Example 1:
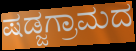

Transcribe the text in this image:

ಷಡ್ಜಗ್ರಾಮದ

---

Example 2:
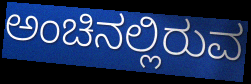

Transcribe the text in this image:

ಅಂಚಿನಲ್ಲಿರುವ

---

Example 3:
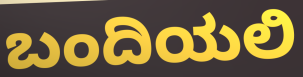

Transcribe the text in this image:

ಬಂದಿಯಲಿ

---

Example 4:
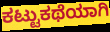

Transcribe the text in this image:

ಕಟ್ಟುಕಥೆಯಾಗಿ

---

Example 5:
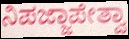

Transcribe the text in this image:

ನಿಪಜ್ಜಾಪೇತ್ವಾ